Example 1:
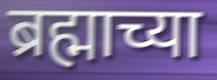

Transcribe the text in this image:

ब्रह्माच्या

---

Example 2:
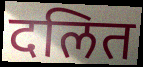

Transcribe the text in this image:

दलित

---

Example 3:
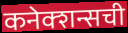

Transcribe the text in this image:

कनेक्शन्सची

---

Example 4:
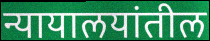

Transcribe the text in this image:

न्यायालयांतील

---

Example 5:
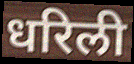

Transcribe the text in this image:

धरिली